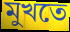
মুখতে